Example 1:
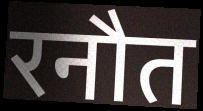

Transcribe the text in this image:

रनौत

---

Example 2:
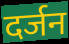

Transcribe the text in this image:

दर्जन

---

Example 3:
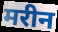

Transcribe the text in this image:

मरीन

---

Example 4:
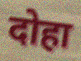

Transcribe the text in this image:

दोहा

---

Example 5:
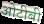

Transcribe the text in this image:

ओटीबी